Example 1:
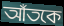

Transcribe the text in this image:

আঁতকে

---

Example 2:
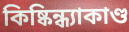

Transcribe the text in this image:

কিষ্কিন্ধ্যাকাণ্ড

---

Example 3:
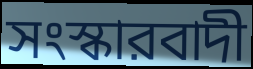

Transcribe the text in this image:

সংস্কারবাদী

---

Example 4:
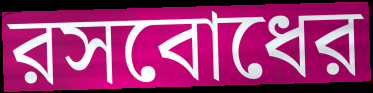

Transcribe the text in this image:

রসবোধের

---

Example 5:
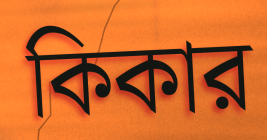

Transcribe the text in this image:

কিকার